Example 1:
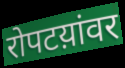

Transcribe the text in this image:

रोपटय़ांवर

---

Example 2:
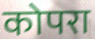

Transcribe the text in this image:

कोपरा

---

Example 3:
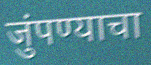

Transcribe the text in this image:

जुंपण्याचा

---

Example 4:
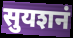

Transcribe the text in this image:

सुयशनं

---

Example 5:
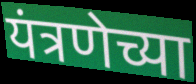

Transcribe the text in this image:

यंत्रणेच्या